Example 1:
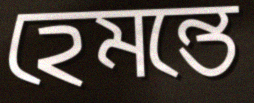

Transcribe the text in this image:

হেমন্তে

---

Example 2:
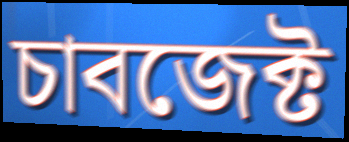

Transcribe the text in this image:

চাবজেক্ট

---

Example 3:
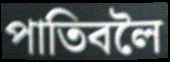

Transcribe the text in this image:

পাতিবলৈ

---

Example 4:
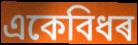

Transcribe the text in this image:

একেবিধৰ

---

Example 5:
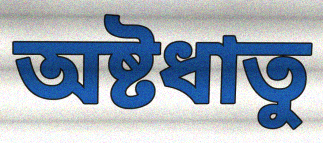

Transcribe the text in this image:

অষ্টধাতু